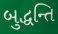
બુદ્ધન્તિ